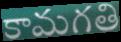
కామగతి